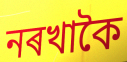
নৰখাকৈ